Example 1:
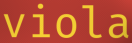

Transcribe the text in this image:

viola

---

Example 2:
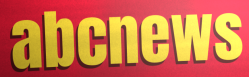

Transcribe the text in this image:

abcnews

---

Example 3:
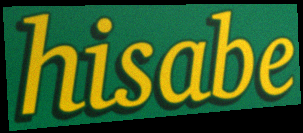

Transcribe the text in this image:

hisabe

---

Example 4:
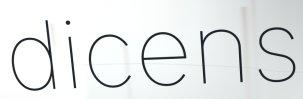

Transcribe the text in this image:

dicens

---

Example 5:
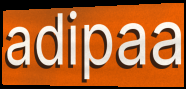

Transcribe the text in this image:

adipaa